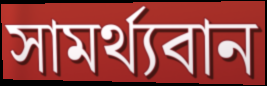
সামর্থ্যবান